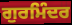
ਗੁਰਮਿੰਦਰ